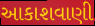
આકાશવાણી